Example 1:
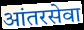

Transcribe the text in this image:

आंतरसेवा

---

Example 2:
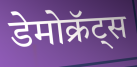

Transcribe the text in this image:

डेमोक्रॅट्स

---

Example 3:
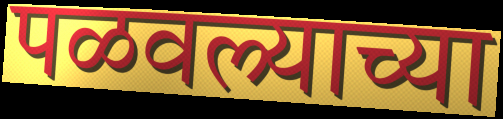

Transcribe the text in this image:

पळवल्याच्या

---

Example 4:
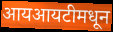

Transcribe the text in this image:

आयआयटीमधून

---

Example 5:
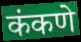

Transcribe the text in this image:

कंकणे